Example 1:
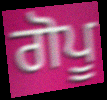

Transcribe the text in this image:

ਗੋਪੂ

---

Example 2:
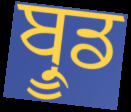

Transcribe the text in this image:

ਬ੍ਰੂਡ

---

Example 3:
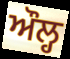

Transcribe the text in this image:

ਔਲ੍ਹ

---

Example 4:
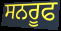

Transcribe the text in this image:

ਸਨਰੂਫ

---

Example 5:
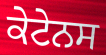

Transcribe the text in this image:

ਕੇਟੇਨਸ